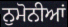
ਨੁਮੋਨੀਆਂ